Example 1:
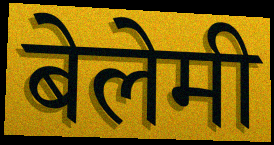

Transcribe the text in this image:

बेलेमी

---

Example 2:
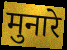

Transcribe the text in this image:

मुनारे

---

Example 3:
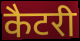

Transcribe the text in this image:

कैटरी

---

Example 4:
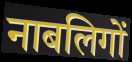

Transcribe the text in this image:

नाबलिगों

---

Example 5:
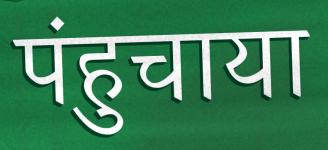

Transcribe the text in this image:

पंहुचाया